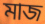
মাজ